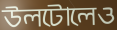
উলটোলেও